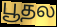
பூதல